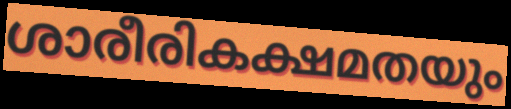
ശാരീരികക്ഷമതയും